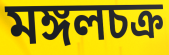
মঙ্গলচক্র